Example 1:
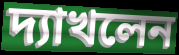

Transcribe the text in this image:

দ্যাখলেন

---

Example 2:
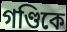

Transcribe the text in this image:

গণ্ডিকে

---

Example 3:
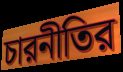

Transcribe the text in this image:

চারনীতির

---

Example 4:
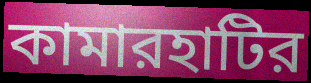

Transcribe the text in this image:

কামারহাটির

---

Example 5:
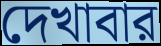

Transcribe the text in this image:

দেখাবার